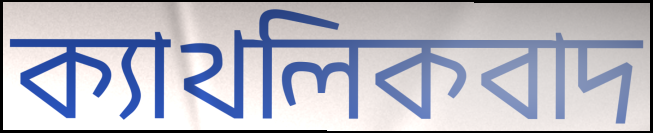
ক্যাথলিকবাদ